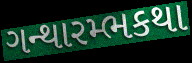
ગન્થારમ્ભકથા